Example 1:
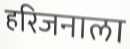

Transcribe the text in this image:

हरिजनाला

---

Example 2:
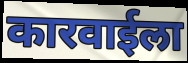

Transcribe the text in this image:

कारवाईला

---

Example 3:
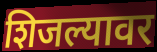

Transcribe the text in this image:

शिजल्यावर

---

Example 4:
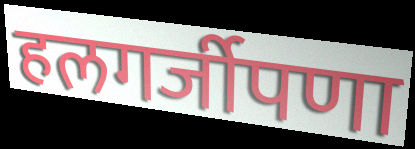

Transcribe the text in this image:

हलगर्जीपणा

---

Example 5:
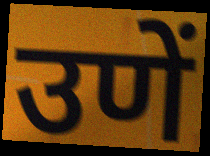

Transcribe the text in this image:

उणें